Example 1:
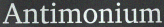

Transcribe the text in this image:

Antimonium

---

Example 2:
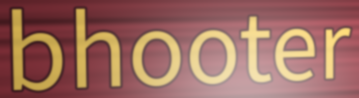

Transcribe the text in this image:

bhooter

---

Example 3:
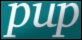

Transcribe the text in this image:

pup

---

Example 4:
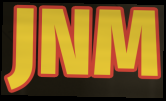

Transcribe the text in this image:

JNM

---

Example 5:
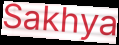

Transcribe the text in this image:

Sakhya